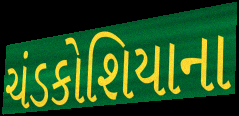
ચંડકોશિયાના